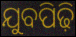
ଯୁବପିଢ଼ି